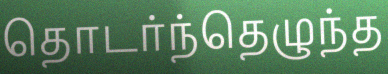
தொடர்ந்தெழுந்த